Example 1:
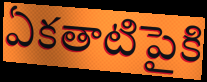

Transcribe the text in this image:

ఏకతాటిపైకి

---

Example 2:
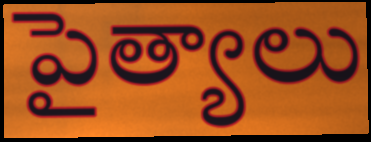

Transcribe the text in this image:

పైత్యాలు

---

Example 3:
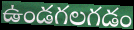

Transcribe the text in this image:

ఉండగలగడం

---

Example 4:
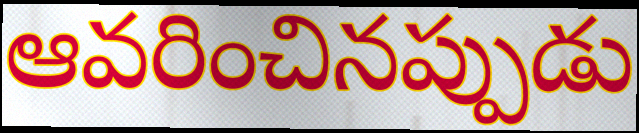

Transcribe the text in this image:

ఆవరించినప్పుడు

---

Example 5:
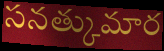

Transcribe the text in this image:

సనత్కుమార